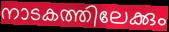
നാടകത്തിലേക്കും